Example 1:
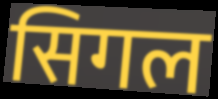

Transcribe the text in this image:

सिगल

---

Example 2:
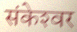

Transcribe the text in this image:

संकेश्वर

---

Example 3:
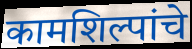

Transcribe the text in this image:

कामशिल्पांचे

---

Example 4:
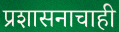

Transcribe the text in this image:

प्रशासनाचाही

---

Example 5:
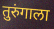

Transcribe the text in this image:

तुरुंगाला